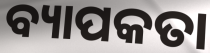
ବ୍ୟାପକତା